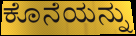
ಕೊನೆಯನ್ನು